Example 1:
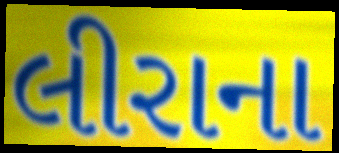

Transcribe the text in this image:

લીરાના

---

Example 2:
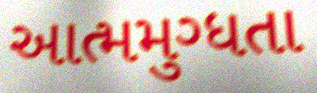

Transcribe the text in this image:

આત્મમુગ્ધતા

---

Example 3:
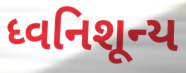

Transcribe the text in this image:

ધ્વનિશૂન્ય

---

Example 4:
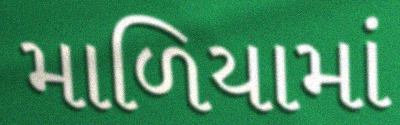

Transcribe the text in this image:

માળિયામાં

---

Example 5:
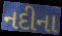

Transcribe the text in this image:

નદીના